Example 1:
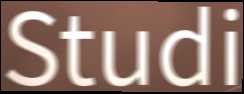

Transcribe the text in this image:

Studi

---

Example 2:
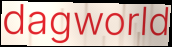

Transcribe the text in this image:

dagworld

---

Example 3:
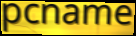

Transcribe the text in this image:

pcname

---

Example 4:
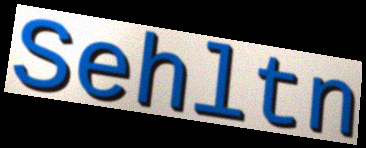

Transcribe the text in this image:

Sehltn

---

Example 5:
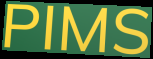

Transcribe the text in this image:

PIMS